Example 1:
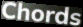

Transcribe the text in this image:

Chords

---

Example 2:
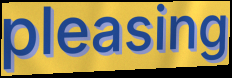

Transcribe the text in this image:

pleasing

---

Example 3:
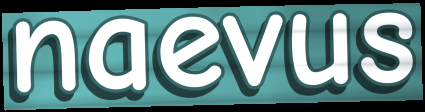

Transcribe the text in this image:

naevus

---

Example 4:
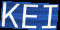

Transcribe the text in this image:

KEI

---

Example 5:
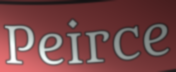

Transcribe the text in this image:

Peirce